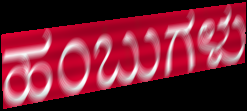
ಹಂಬುಗಳು